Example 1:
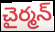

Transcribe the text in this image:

చైర్మన్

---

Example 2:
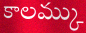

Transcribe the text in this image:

కాలమ్కు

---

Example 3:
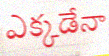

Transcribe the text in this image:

ఎక్కడేనా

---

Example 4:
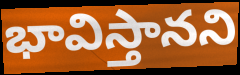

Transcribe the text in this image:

భావిస్తానని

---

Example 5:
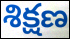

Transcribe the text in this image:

శిక్షణ